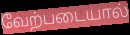
வேற்படையால்